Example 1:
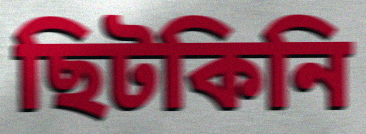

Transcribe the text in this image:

ছিটকিনি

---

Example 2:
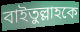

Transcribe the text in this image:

বাইতুল্লাহকে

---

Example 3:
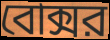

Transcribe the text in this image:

বোক্সর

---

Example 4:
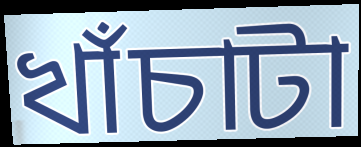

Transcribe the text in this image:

খাঁচাটা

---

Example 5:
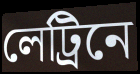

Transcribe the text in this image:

লেট্রিনে